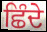
ਛਿੰਦੇ